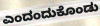
ಎಂದಂದುಕೊಂಡು